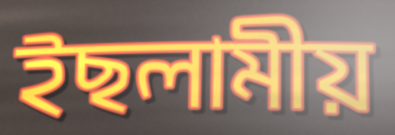
ইছলামীয়